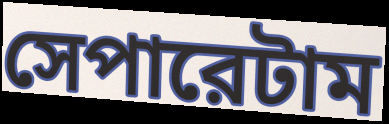
সেপারেটাম